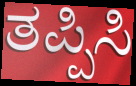
ತಪ್ಪಿಸಿ